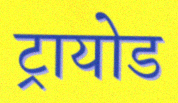
ट्रायोड